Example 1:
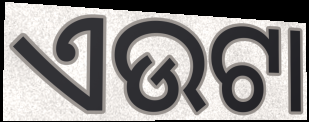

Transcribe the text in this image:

ଏଉଟା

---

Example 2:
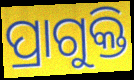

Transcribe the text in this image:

ପ୍ରାଗୁକ୍ତି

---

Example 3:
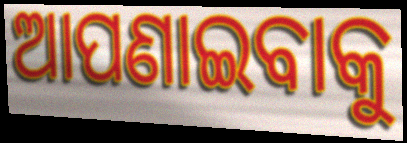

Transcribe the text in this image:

ଆପଣାଇବାକୁ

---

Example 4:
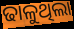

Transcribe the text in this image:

ଢାଳୁଥିଲା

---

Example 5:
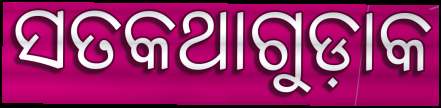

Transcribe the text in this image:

ସତକଥାଗୁଡ଼ାକ